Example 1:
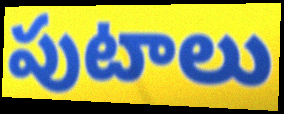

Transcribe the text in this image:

పుటాలు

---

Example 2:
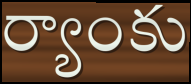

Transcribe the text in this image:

ర్యాంకు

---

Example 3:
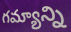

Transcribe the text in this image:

గమ్యాన్ని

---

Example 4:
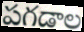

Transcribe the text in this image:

పగడాల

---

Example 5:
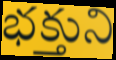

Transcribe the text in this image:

భక్తుని